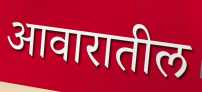
आवारातील